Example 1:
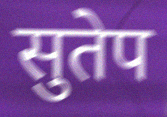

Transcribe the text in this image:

सुतेप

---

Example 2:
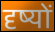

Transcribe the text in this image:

दृष्यों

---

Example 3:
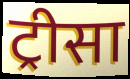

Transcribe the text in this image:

ट्रीसा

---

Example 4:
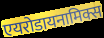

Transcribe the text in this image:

एयरोडायनामिक्स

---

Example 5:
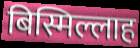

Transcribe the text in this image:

बिस्मिल्लाह